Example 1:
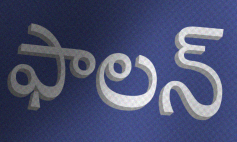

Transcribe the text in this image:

ఫాలన్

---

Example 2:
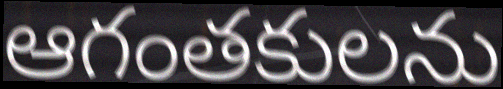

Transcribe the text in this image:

ఆగంతకులను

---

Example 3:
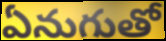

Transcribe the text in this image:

ఏనుగుతో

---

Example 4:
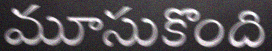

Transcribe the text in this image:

మూసుకొంది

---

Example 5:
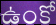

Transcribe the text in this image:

ఉంకో